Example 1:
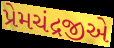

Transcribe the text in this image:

પ્રેમચંદ્રજીએ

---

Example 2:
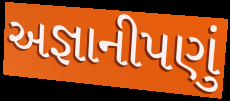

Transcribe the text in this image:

અજ્ઞાનીપણું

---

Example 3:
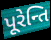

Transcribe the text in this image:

પૂરેન્તિ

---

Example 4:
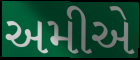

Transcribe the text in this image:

અમીએ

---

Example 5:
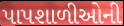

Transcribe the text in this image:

પાપશાળીઓની